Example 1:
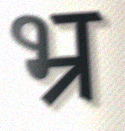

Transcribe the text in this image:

भ्र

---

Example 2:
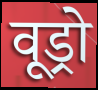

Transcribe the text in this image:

वूड्रो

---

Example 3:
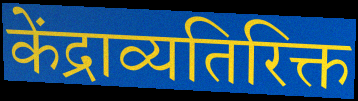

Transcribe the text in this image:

केंद्राव्यतिरिक्त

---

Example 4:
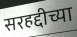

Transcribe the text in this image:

सरहद्दीच्या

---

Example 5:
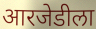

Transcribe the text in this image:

आरजेडीला